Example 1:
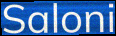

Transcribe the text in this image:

Saloni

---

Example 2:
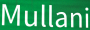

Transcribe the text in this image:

Mullani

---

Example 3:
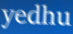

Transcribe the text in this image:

yedhu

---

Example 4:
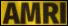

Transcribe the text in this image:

AMRI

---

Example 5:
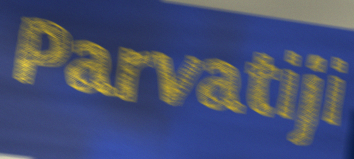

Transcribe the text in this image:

Parvatiji